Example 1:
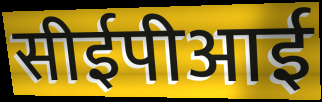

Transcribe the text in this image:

सीईपीआई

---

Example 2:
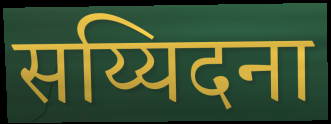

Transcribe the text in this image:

सय्यिदना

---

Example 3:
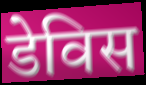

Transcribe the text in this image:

डेविस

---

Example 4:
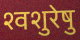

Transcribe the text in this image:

श्वशुरेषु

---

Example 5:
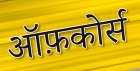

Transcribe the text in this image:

ऑफ़कोर्स